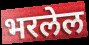
भरलेल